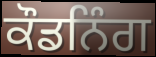
ਕੌਡਨਿੰਗ